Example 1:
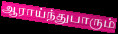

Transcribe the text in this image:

ஆராய்ந்துபாரும்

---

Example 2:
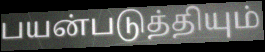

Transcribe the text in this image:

பயன்படுத்தியும்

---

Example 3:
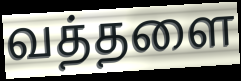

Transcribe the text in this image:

வத்தளை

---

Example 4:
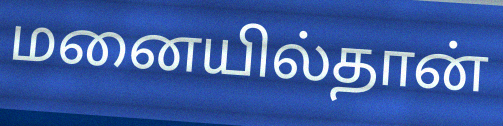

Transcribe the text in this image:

மனையில்தான்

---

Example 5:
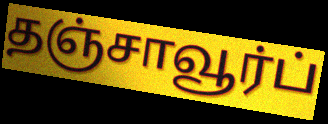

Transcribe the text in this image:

தஞ்சாவூர்ப்